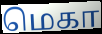
மெகா